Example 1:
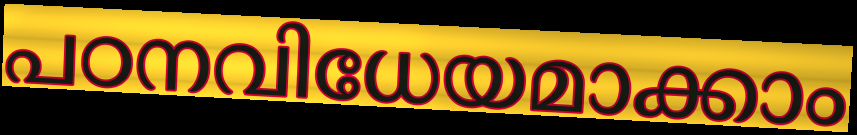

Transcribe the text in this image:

പഠനവിധേയമാക്കാം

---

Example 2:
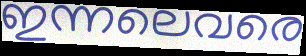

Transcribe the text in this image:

ഇന്നലെവരെ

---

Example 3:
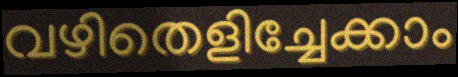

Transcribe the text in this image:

വഴിതെളിച്ചേക്കാം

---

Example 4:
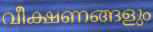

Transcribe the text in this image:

വീക്ഷണങ്ങളും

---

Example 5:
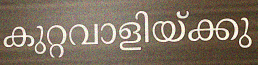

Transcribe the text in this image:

കുറ്റവാളിയ്ക്കു